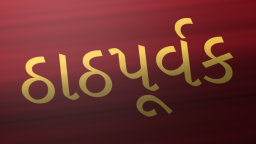
ઠાઠપૂર્વક